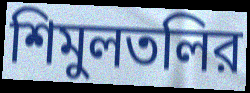
শিমুলতলির